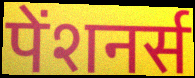
पेंशनर्स